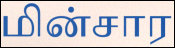
மின்சார